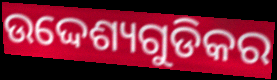
ଉଦ୍ଦେଶ୍ୟଗୁଡିକର